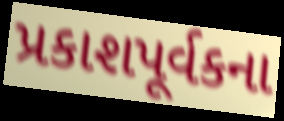
પ્રકાશપૂર્વકના